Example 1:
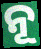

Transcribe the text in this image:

ନୂ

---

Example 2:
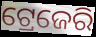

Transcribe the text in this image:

ଟ୍ରେଜେରି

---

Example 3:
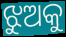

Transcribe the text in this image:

ଝୁଅକୁ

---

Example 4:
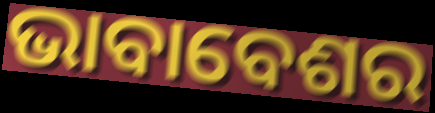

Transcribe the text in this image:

ଭାବାବେଶର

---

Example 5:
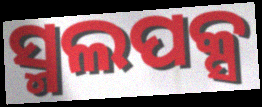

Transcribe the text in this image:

ସ୍ମଲପକ୍ସ